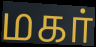
மகர்